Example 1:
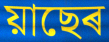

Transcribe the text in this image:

য়াছেৰ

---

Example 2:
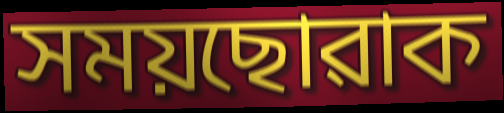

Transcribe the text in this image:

সময়ছোৱাক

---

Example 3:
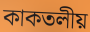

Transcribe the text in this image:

কাকতলীয়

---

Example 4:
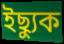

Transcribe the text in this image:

ইছ্যুক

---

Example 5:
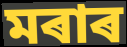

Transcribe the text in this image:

মৰাৰ